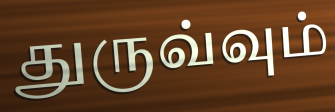
துருவ்வும்